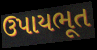
ઉપાયભૂત